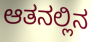
ಆತನಲ್ಲಿನ